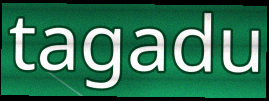
tagadu